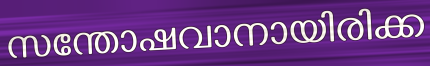
സന്തോഷവാനായിരിക്ക